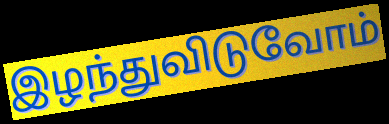
இழந்துவிடுவோம்